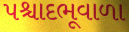
પશ્ચાદભૂવાળા